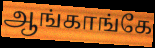
ஆங்காங்கே